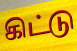
கிட்டு